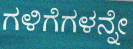
ಗಳಿಗೆಗಳನ್ನೇ